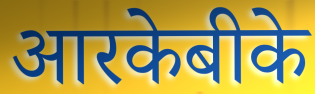
आरकेबीके